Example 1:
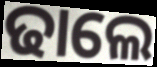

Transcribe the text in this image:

ଢାଲେ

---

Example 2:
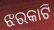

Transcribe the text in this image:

ଝରକାଟି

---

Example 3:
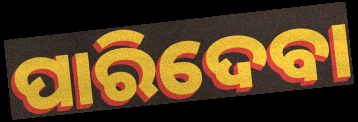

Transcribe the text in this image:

ପାରିଦେବା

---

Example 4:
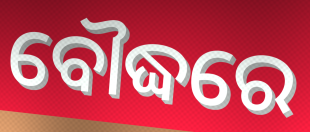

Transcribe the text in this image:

ବୌଦ୍ଧରେ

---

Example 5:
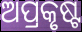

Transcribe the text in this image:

ଅପ୍ରକୃଷ୍ଟ